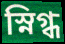
স্নিগ্ধ